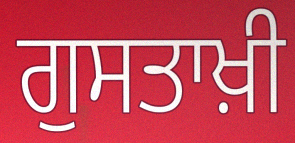
ਗੁਸਤਾਖ਼ੀ